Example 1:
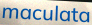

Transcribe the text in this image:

maculata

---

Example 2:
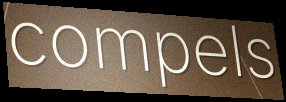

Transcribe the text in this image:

compels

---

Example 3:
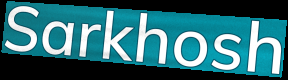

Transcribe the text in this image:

Sarkhosh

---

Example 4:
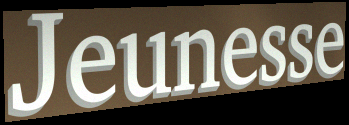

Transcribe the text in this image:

Jeunesse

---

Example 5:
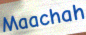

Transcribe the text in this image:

Maachah